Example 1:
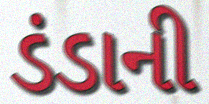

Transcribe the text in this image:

ડંડાની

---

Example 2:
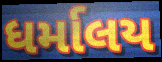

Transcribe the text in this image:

ધર્માલય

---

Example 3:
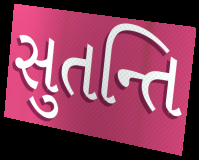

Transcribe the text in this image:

સુતન્તિ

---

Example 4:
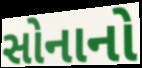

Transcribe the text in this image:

સોનાનો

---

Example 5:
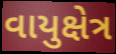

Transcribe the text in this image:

વાયુક્ષેત્ર